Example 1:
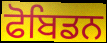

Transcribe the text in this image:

ਫੋਬਿਡਨ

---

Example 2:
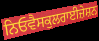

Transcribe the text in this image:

ਨਿਓਵੈਸਕੁਲਰਾਈਜ਼ੇਸ਼ਨ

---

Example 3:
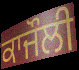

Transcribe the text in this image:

ਕਾਜੌਲੀ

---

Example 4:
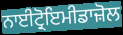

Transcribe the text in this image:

ਨਾਈਟ੍ਰੋਇਮੀਡਾਜ਼ੋਲ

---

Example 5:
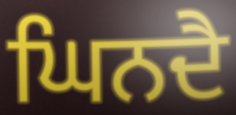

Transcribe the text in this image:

ਘਿਨਦੈ